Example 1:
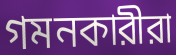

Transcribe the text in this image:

গমনকারীরা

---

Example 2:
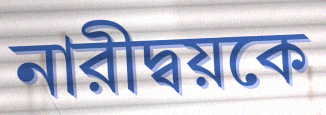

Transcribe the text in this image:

নারীদ্বয়কে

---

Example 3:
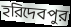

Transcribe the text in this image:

হরিদেবপুর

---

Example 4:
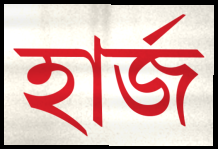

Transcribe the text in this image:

হার্জ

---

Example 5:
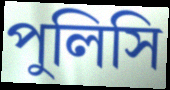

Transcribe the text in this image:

পুলিসি